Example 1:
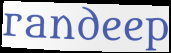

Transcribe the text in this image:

randeep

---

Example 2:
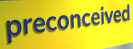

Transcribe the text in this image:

preconceived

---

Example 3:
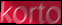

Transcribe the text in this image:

korto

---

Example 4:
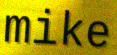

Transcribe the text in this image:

mike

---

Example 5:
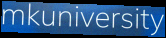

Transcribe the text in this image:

mkuniversity